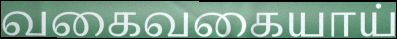
வகைவகையாய்